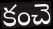
కంచె